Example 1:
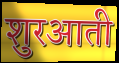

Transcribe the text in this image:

शुरआती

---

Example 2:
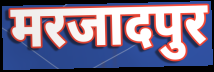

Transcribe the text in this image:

मरजादपुर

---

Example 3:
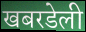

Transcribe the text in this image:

खबरडेली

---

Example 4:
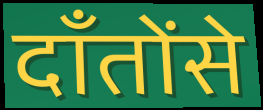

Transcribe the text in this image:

दाँतोंसे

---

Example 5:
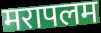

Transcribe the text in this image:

मरापलम